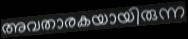
അവതാരകയായിരുന്ന